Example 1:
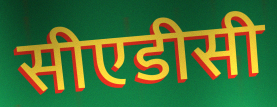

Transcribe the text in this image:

सीएडीसी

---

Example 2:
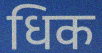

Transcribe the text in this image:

धिक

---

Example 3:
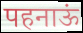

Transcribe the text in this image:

पहनाऊं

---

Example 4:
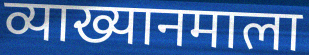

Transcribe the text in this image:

व्याख्यानमाला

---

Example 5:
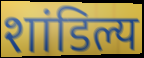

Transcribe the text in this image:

शांडिल्य